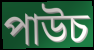
পাউচ